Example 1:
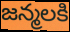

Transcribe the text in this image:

జన్మలకి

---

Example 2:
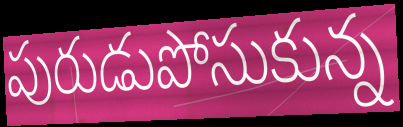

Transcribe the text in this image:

పురుడుపోసుకున్న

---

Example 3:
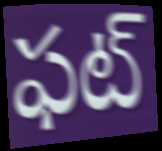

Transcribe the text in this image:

ఫట్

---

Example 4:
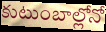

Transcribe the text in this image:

కుటుంబాల్లోనో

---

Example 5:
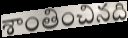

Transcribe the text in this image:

శాంతించినది